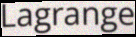
Lagrange